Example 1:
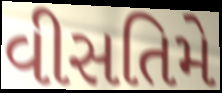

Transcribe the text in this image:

વીસતિમે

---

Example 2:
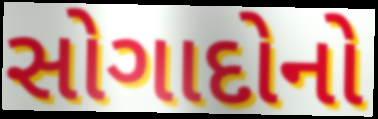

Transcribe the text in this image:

સોગાદોનો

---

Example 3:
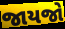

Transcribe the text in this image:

જાયજો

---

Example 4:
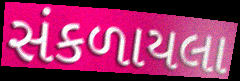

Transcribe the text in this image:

સંકળાયલા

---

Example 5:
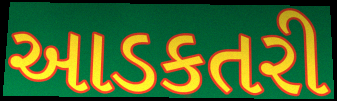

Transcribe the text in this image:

આડકતરી